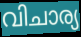
വിചാര്യ